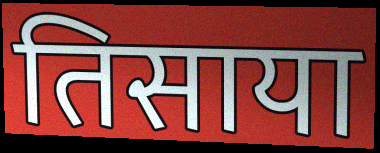
तिसाया